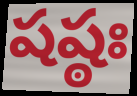
షష్ఠః